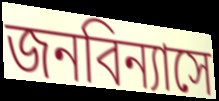
জনবিন্যাসে